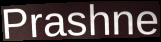
Prashne